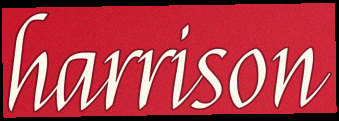
harrison